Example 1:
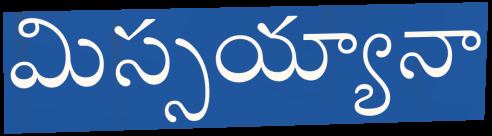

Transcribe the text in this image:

మిస్సయ్యానా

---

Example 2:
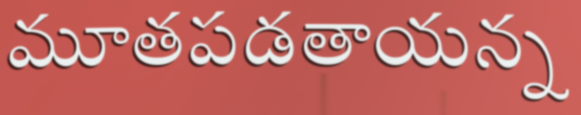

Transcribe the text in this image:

మూతపడతాయన్న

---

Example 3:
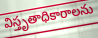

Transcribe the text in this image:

విస్తృతాధికారాలను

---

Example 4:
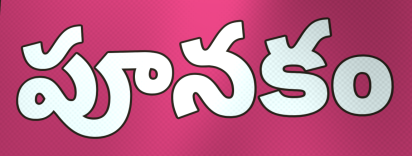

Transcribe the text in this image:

పూనకం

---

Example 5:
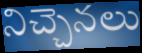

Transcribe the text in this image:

నిచ్చెనలు